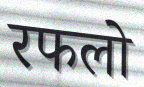
रफलो